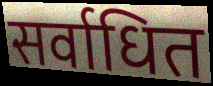
सर्वाधित